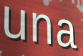
una